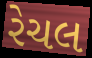
રેચલ